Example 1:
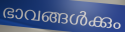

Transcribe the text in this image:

ഭാവങ്ങൾക്കും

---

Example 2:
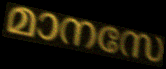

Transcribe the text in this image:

മാനസേ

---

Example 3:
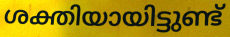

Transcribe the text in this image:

ശക്തിയായിട്ടുണ്ട്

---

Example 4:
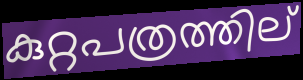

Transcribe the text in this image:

കുറ്റപത്രത്തില്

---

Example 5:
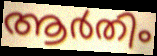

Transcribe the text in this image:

ആർതിം